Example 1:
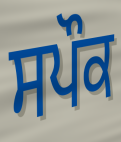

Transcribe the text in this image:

ਸਪੌਕ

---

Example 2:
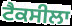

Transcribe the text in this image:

ਟੈਕਸੀਲਾ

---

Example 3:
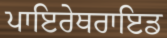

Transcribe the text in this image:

ਪਾਇਰੇਥਰਾਇਡ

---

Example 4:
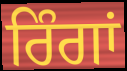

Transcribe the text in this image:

ਰਿੰਗਾਂ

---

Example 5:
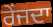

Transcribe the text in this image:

ਰੇਂਜਦਾ